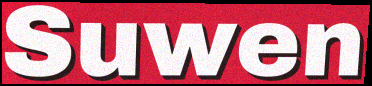
Suwen